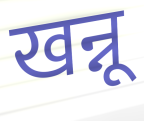
खन्नू